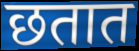
छतात